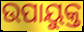
ଉପାୟୁକ୍ତ